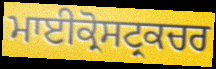
ਮਾਈਕ੍ਰੋਸਟ੍ਰਕਚਰ